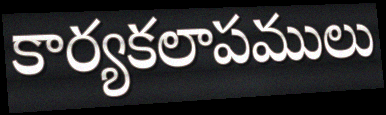
కార్యకలాపములు